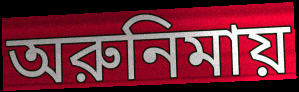
অরুনিমায়